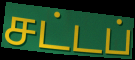
சட்டப்